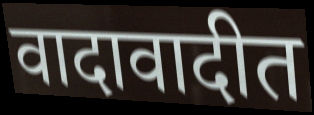
वादावादीत